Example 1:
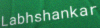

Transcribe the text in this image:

Labhshankar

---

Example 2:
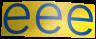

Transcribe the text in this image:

eee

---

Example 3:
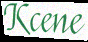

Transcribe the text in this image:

Kcene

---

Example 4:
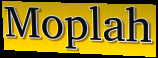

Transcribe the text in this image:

Moplah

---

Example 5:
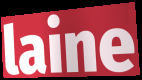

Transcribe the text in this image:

laine